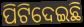
ପିଟିଦେଇଛି